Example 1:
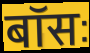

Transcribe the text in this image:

बॉसः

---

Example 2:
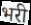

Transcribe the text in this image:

भरी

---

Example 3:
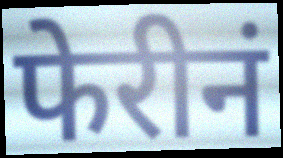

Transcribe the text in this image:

फेरीनं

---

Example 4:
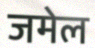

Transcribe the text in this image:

जमेल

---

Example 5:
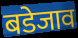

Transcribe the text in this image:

बडेजाव